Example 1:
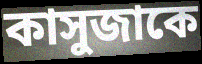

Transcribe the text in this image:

কাসুজাকে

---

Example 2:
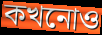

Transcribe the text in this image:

কখনোও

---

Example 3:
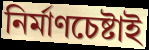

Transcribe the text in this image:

নির্মাণচেষ্টাই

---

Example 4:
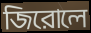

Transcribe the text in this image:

জিরোলে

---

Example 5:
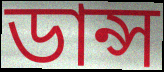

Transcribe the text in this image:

ডান্স